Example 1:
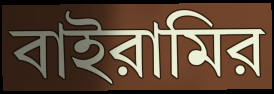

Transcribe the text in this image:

বাইরামির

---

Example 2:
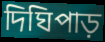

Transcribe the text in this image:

দিঘিপাড়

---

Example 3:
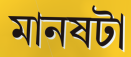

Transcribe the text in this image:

মানষটা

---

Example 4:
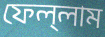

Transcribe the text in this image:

ফেল্‌লাম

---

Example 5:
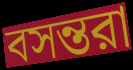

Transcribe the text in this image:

বসন্তরা